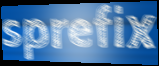
sprefix